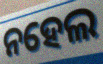
ନହେଲ